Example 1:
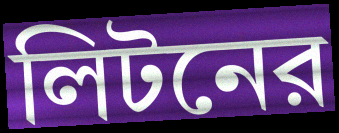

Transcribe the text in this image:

লিটনের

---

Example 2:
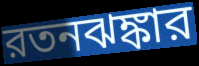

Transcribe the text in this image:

রতনঝঙ্কার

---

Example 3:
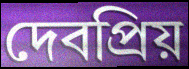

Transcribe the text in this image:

দেবপ্রিয়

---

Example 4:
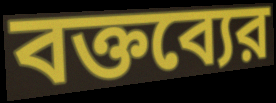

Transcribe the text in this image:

বক্তব্যের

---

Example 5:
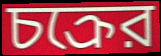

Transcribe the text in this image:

চক্রের